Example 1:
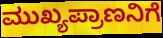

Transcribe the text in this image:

ಮುಖ್ಯಪ್ರಾಣನಿಗೆ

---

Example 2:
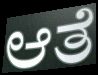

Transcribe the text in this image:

ಆತೆ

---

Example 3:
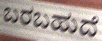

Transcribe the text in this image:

ಬರಬಹುದೆ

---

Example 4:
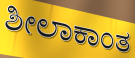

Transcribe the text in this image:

ಶೀಲಾಕಾಂತ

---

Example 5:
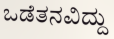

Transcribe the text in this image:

ಒಡೆತನವಿದ್ದು